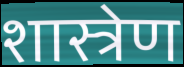
शास्त्रेण